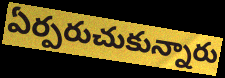
ఏర్పరుచుకున్నారు